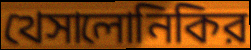
থেসালোনিকির